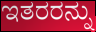
ಇತರರನ್ನು